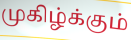
முகிழ்க்கும்